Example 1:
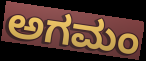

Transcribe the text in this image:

ಅಗಮಂ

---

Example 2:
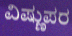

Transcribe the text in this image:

ವಿಷ್ಣುಪರ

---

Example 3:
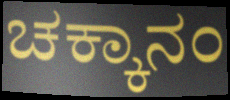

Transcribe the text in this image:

ಚಕ್ಕಾನಂ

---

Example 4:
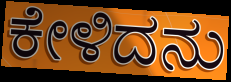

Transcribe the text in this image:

ಕೇಳಿದನು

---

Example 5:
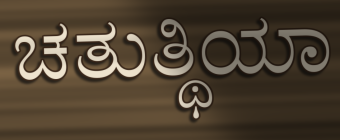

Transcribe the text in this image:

ಚತುತ್ಥಿಯಾ